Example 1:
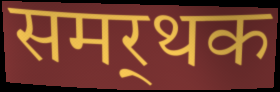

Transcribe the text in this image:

समर्थक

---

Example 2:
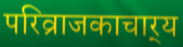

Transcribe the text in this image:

परिव्राजकाचार्य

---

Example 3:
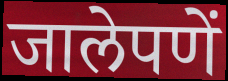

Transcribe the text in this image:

जालेपणें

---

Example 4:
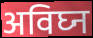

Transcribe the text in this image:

अविघ्न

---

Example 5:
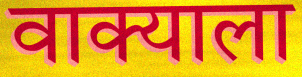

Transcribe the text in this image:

वाक्याला